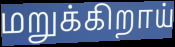
மறுக்கிறாய்